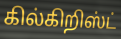
கில்கிறிஸ்ட்